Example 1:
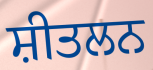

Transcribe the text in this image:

ਸ਼ੀਤਲਨ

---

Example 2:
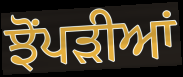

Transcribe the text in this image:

ਝੋਂਪੜੀਆਂ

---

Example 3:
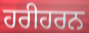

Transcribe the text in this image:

ਹਰੀਹਰਨ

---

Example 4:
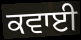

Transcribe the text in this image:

ਕਵਾਈ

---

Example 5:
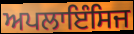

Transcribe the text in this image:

ਅਪਲਾਇੰਸਿਜ